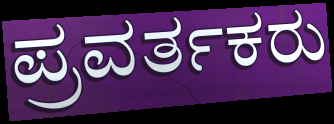
ಪ್ರವರ್ತಕರು